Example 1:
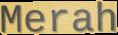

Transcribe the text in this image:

Merah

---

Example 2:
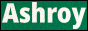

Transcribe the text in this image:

Ashroy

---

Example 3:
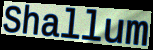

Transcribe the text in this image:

Shallum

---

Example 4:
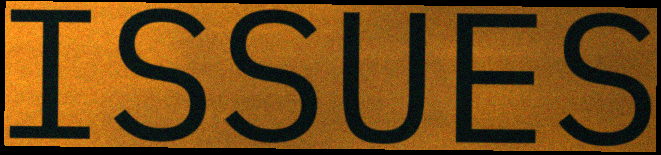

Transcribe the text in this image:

ISSUES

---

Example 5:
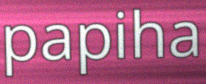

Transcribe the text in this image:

papiha